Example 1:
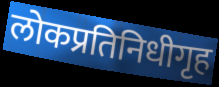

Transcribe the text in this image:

लोकप्रतिनिधीगृह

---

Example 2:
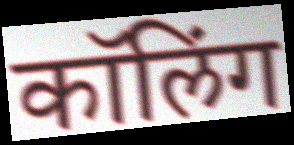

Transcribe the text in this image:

कॉलिंग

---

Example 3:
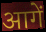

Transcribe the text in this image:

आगें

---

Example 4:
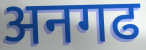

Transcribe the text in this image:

अनगढ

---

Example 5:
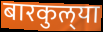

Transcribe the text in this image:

बारकुल्या